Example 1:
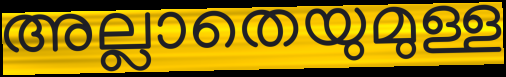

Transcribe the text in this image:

അല്ലാതെയുമുള്ള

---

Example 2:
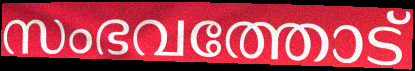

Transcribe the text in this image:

സംഭവത്തോട്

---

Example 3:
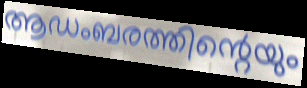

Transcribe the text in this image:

ആഡംബരത്തിന്റെയും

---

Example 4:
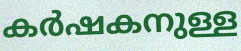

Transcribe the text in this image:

കർഷകനുള്ള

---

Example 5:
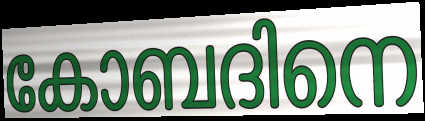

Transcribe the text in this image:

കോബദിനെ